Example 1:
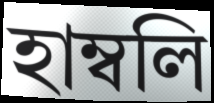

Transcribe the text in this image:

হাম্বলি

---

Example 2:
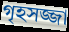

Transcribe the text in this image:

গৃহসজ্জা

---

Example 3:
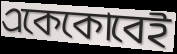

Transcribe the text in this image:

একেকোবেই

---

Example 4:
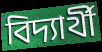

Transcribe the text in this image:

বিদ্যাৰ্থী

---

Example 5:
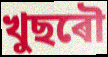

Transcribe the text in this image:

খুছৰৌ